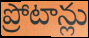
ప్రోటాన్లు